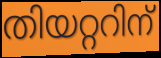
തിയറ്ററിന്